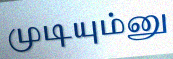
முடியும்னு